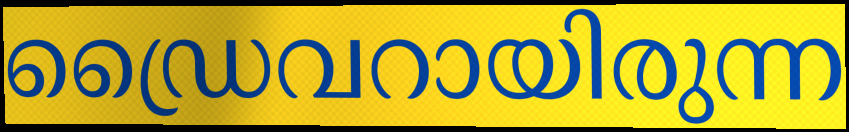
ഡ്രൈവറായിരുന്ന